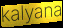
kalyana